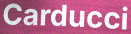
Carducci